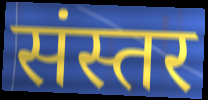
संस्तर